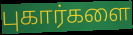
புகார்களை